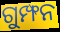
ଗୁମ୍ଫନ